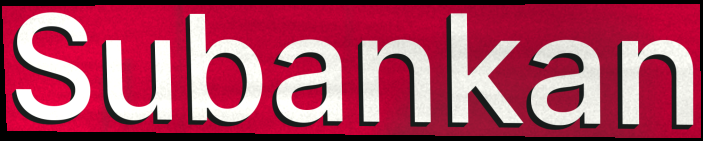
Subankan